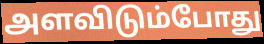
அளவிடும்போது